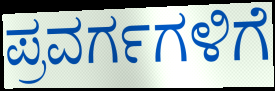
ಪ್ರವರ್ಗಗಳಿಗೆ